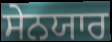
ਸੇਨਯਾਰ